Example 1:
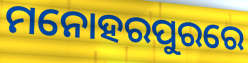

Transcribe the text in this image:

ମନୋହରପୁରରେ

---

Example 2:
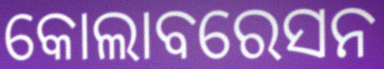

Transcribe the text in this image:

କୋଲାବରେସନ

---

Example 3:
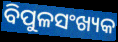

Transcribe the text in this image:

ବିପୁଳସଂଖ୍ୟକ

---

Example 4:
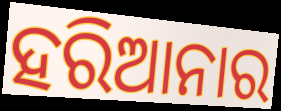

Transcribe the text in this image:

ହରିଆନାର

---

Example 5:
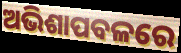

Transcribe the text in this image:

ଅଭିଶାପବଳରେ